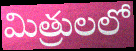
మిత్రులలో